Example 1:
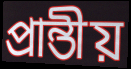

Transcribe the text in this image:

প্রান্তীয়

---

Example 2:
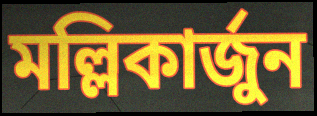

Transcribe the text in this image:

মল্লিকার্জুন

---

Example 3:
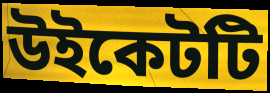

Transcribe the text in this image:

উইকেটটি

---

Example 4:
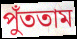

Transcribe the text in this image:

পুঁততাম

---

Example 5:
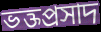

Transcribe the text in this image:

ভক্তপ্রসাদ